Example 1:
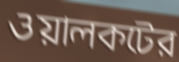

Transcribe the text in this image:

ওয়ালকটের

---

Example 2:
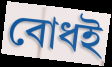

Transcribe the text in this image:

বোধই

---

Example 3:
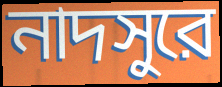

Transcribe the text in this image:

নাদসুরে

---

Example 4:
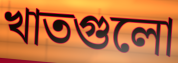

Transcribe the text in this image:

খাতগুলো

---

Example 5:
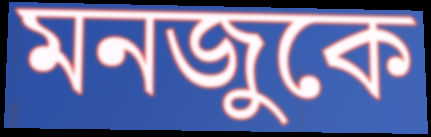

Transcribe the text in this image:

মনজুকে